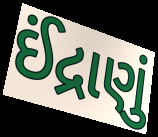
ઈંદ્રાણું